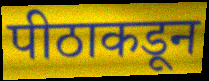
पीठाकडून